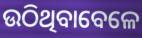
ଉଠିଥିବାବେଳେ